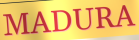
MADURA